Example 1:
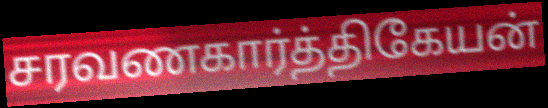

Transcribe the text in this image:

சரவணகார்த்திகேயன்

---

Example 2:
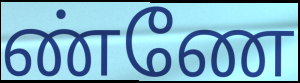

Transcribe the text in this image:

ண்ணே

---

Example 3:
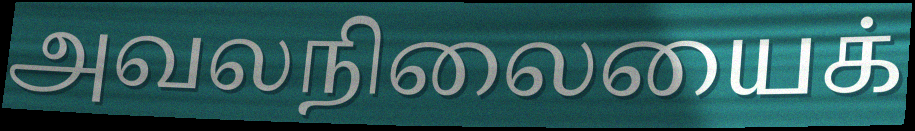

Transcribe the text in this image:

அவலநிலையைக்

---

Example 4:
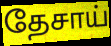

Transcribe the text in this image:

தேசாய்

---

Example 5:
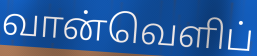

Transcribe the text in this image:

வான்வெளிப்